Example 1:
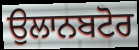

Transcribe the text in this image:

ਉਲਾਨਬਟੋਰ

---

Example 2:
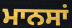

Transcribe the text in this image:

ਮਾਨਸਾਂ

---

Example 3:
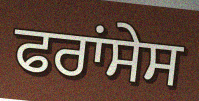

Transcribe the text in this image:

ਫਰਾਂਸੇਸ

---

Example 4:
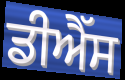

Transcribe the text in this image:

ਡੀਐੱਸ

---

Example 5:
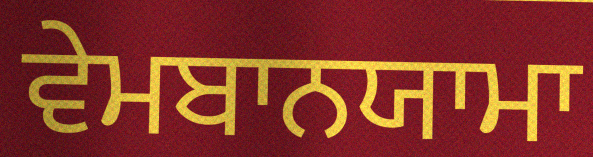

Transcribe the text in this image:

ਵੇਮਬਾਨਯਾਮਾ